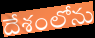
దేశంలోను